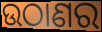
ଉଠାଣର